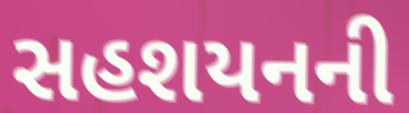
સહશયનની